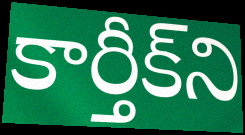
కార్తీక్‌ని